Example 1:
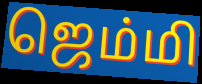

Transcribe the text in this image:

ஜெம்மி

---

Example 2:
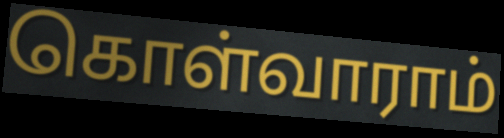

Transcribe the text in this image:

கொள்வாராம்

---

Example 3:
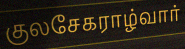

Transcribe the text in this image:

குலசேகராழ்வார்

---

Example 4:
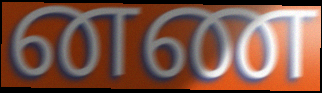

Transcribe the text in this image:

னண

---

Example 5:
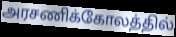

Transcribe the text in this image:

அரசணிக்கோலத்தில்